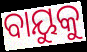
ବାୟୁକୁ